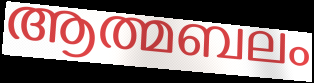
ആത്മബലം